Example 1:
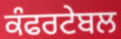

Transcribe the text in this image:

ਕੰਫਰਟੇਬਲ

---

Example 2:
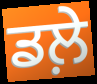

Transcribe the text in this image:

ਡਲ਼ੇ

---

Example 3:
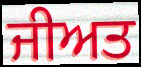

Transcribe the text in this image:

ਜੀਅਤ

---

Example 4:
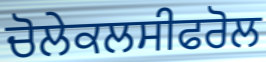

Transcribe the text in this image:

ਚੋਲੇਕਲਸੀਫਰੋਲ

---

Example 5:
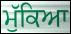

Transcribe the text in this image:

ਮੁੱਕਿਆ